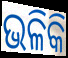
ଭଳିକି